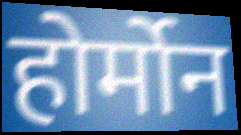
होर्मोन